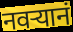
नवर्‍यानं